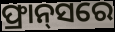
ଫ୍ରାନ୍‌ସରେ